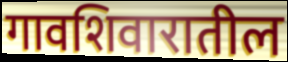
गावशिवारातील